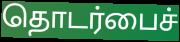
தொடர்பைச்